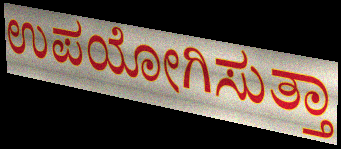
ಉಪಯೋಗಿಸುತ್ತಾ